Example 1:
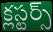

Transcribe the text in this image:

క్లస్టర్స్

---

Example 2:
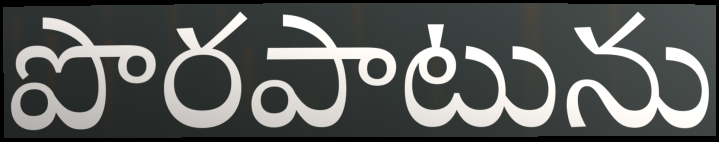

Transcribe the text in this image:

పొరపాటును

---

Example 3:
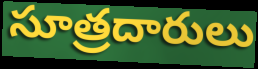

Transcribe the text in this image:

సూత్రదారులు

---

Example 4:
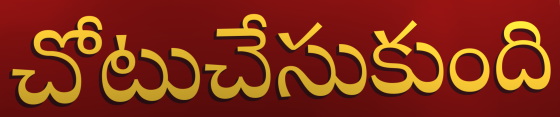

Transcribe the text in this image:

చోటుచేసుకుంది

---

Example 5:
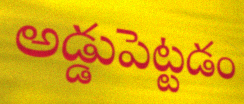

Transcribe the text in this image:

అడ్డుపెట్టడం